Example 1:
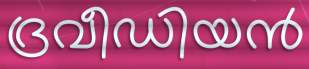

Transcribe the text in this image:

ദ്രവീഡിയൻ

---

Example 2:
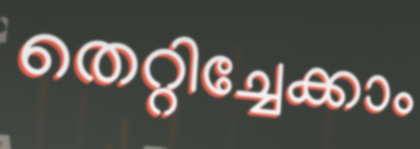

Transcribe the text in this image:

തെറ്റിച്ചേക്കാം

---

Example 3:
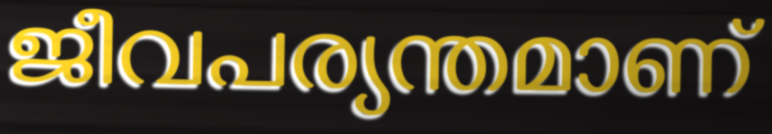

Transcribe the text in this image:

ജീവപര്യന്തമാണ്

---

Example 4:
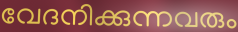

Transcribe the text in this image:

വേദനിക്കുന്നവരും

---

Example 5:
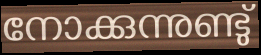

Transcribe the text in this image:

നോക്കുന്നുണ്ടു്